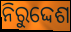
ନିରୁଦ୍ଦେଶ